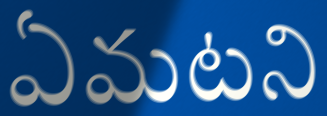
ఏమటని